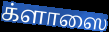
க்ளாஸை